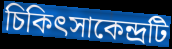
চিকিৎসাকেন্দ্রটি